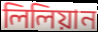
লিলিয়ান